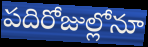
పదిరోజుల్లోనూ